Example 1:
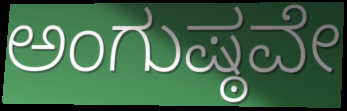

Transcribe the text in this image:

ಅಂಗುಷ್ಠವೇ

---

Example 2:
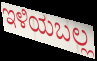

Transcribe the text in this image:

ಇಳಿಯಬಲ್ಲ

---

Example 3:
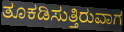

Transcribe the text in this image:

ತೂಕಡಿಸುತ್ತಿರುವಾಗ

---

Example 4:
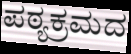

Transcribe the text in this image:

ಪಠ್ಯಕ್ರಮದ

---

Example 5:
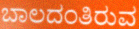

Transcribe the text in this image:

ಬಾಲದಂತಿರುವ